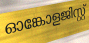
ഓങ്കോളജിസ്റ്റ്